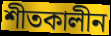
শীতকালীন